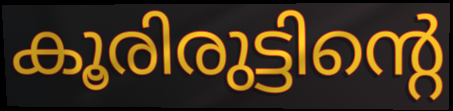
കൂരിരുട്ടിന്റെ